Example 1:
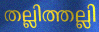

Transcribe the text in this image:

തല്ലിത്തല്ലി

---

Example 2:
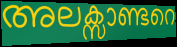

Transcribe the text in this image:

അലക്സാണ്ടറെ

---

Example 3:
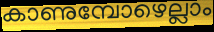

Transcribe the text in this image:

കാണുമ്പോഴെല്ലാം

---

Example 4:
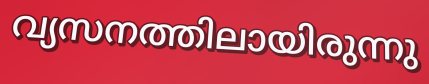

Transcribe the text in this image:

വ്യസനത്തിലായിരുന്നു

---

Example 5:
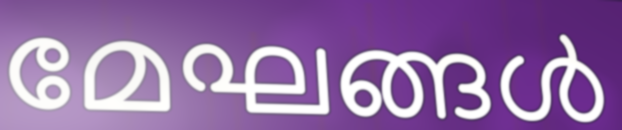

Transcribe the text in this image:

മേഘങ്ങൾ